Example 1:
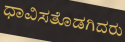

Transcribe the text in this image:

ಧಾವಿಸತೊಡಗಿದರು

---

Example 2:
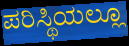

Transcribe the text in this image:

ಪರಿಸ್ಥಿಯಲ್ಲೂ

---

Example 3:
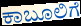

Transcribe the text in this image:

ಕಾಬೂಲಿಗೆ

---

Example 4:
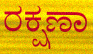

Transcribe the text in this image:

ರಕ್ಷಣಾ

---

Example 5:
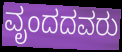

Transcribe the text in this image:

ವೃಂದದವರು